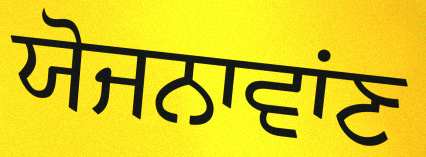
ਯੋਜਨਾਵਾਂਣ